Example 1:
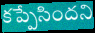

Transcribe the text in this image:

కప్పేసిందని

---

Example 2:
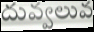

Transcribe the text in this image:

దువ్వలువ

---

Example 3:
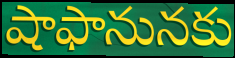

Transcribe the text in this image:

షాఫానునకు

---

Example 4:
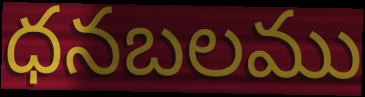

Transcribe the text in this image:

ధనబలము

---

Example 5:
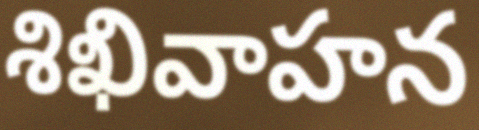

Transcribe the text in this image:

శిఖివాహన